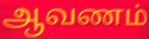
ஆவணம்